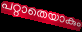
പറ്റാതെയാകും